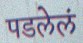
पडलेलं